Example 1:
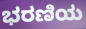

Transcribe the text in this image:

ಭರಣಿಯ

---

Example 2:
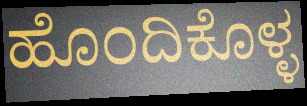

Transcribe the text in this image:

ಹೊಂದಿಕೊಳ್ಳ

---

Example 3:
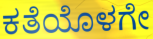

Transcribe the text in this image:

ಕತೆಯೊಳಗೇ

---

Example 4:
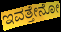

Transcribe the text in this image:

ಇವತ್ತೇನೋ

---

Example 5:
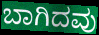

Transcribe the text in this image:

ಬಾಗಿದವು